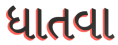
ધાતવા